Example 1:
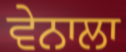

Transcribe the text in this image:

ਵੇਨਾਲਾ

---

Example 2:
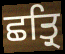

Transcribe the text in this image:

ਛਤ੍ਰਿ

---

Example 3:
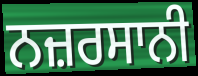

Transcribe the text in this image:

ਨਜ਼ਰਸਾਨੀ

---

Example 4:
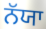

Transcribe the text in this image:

ਨੱਯਾ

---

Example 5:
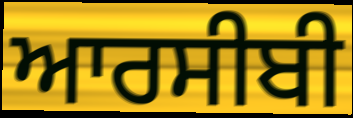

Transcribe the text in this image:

ਆਰਸੀਬੀ